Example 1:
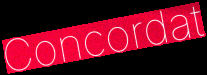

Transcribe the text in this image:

Concordat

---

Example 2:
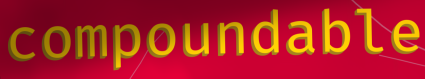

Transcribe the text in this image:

compoundable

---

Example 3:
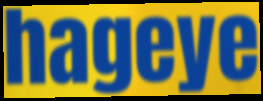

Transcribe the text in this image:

hageye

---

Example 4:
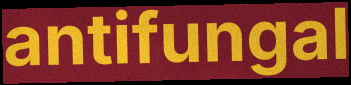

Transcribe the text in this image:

antifungal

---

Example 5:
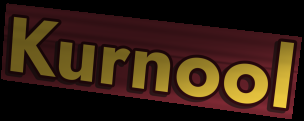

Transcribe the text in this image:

Kurnool